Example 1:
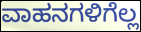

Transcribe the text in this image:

ವಾಹನಗಳಿಗೆಲ್ಲ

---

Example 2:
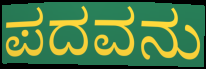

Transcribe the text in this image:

ಪದವನು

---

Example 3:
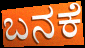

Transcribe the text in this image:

ಬನಕೆ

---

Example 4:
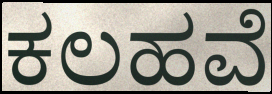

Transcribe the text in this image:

ಕಲಹವೆ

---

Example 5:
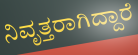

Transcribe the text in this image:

ನಿವೃತ್ತರಾಗಿದ್ದಾರೆ